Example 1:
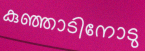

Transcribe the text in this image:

കുഞ്ഞാടിനോടു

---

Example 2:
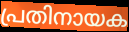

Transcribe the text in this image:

പ്രതിനായക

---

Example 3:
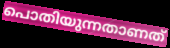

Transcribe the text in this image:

പൊതിയുന്നതാണത്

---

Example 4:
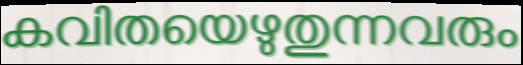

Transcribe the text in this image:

കവിതയെഴുതുന്നവരും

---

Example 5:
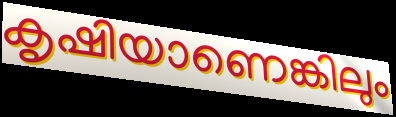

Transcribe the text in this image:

കൃഷിയാണെങ്കിലും